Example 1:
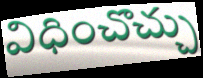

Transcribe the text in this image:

విధించొచ్చు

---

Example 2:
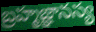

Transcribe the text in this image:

బ్రహ్మజ్ఞానస్య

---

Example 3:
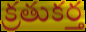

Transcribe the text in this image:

క్రతుకర్త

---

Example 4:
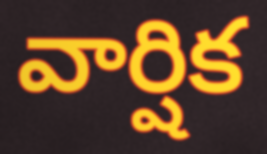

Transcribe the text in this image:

వార్షిక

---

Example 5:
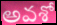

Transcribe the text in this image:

అవశో